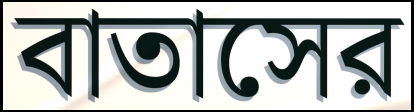
বাতাসের